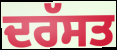
ਦਰੱਸਤ